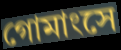
গোমাংসে